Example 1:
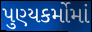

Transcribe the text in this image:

પુણ્યકર્મોમાં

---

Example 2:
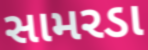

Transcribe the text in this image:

સામરડા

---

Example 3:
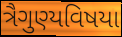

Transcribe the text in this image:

ત્રૈગુણ્યવિષયા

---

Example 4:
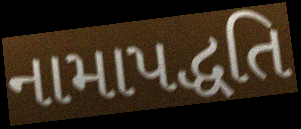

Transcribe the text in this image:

નામાપદ્ધતિ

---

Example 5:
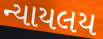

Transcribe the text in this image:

ન્યાયલય